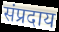
संप्रदाय